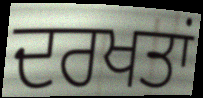
ਦਰਖਤਾਂ